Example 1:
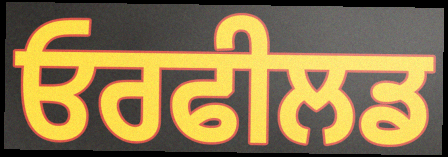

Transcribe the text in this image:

ਓਰਫੀਲਡ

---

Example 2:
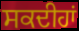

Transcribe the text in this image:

ਸਕਦੀਹਾਂ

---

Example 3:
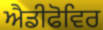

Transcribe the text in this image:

ਐਡੀਫੋਵਿਰ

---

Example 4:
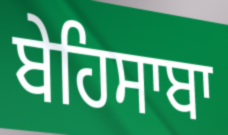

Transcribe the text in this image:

ਬੇਹਿਸਾਬਾ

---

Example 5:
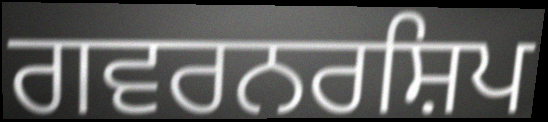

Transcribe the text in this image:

ਗਵਰਨਰਸ਼ਿਪ